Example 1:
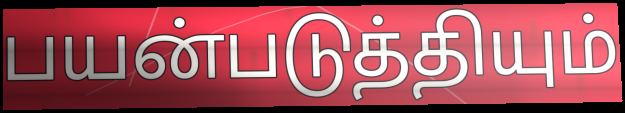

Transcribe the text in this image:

பயன்படுத்தியும்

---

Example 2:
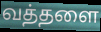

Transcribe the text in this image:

வத்தளை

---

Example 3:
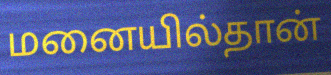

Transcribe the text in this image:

மனையில்தான்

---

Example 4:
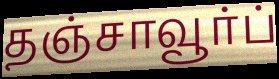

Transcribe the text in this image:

தஞ்சாவூர்ப்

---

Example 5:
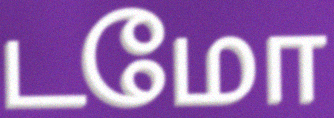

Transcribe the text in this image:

டமோ